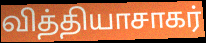
வித்தியாசாகர்